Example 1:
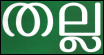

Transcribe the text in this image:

തല്ല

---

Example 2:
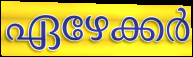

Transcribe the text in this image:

ഏഴേക്കർ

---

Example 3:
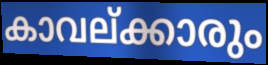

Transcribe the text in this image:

കാവല്ക്കാരും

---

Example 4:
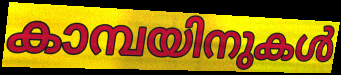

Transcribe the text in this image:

കാമ്പയിനുകൾ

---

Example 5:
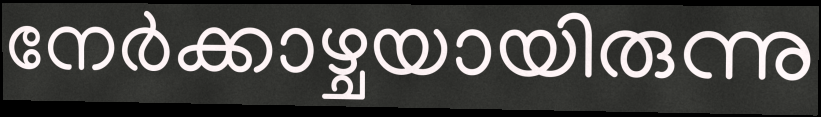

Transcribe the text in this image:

നേർക്കാഴ്ചയായിരുന്നു